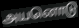
அயனொடு